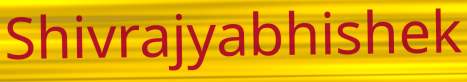
Shivrajyabhishek